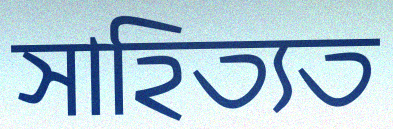
সাহিত্যত